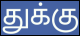
துக்கு